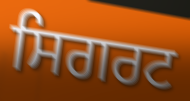
ਸਿਗਰਟ